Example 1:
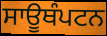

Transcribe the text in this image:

ਸਾਊਥੰਪਟਨ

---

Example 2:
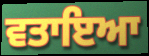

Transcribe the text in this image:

ਵਤਾਇਆ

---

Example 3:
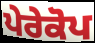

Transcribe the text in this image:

ਪੇਰੇਕੋਪ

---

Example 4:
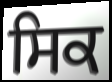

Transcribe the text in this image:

ਸਿਕ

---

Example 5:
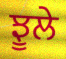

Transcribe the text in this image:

ਝੂਲੇ